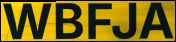
WBFJA